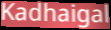
Kadhaigal